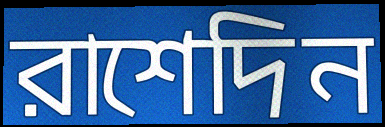
রাশেদিন